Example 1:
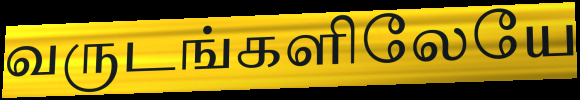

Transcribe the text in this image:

வருடங்களிலேயே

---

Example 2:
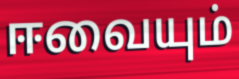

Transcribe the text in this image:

ஈவையும்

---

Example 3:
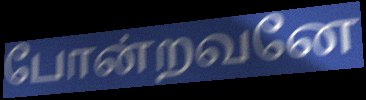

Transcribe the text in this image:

போன்றவனே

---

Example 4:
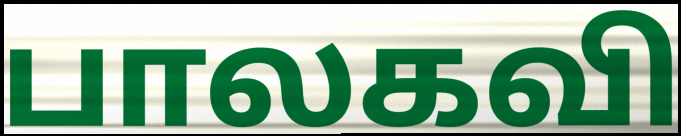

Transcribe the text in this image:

பாலகவி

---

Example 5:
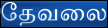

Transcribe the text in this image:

தேவலை